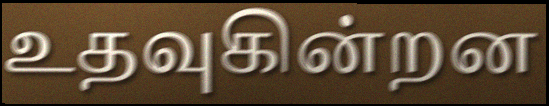
உதவுகின்றன